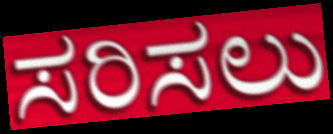
ಸರಿಸಲು